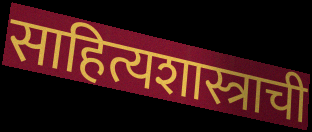
साहित्यशास्त्राची